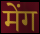
मेंग